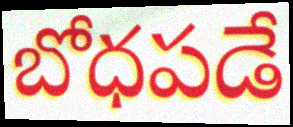
బోధపడే